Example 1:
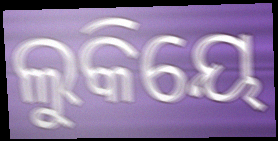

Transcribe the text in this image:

ଲୁକିୟେ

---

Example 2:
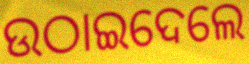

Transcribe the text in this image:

ଉଠାଇଦେଲେ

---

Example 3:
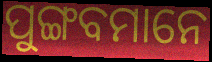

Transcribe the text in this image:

ପୁଙ୍ଗବମାନେ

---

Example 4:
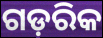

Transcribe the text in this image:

ଗଡ଼ରିକ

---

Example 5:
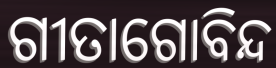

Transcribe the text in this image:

ଗୀତାଗୋବିନ୍ଦ